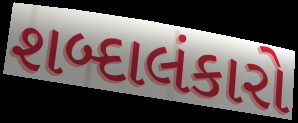
શબ્દાલંકારો